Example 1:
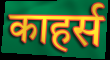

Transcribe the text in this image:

काहर्स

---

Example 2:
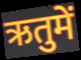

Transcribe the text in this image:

ऋतुमें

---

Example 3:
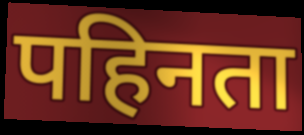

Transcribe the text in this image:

पहिनता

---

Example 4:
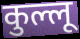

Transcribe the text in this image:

कुल्लू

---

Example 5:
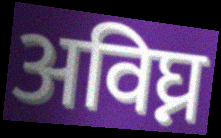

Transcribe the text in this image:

अविघ्न